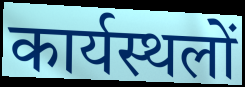
कार्यस्थलों